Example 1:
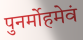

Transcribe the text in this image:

पुनर्मोहमेवं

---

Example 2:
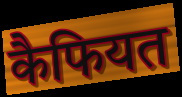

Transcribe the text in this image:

कैफियत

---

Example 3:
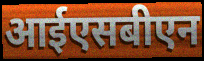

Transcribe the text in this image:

आईएसबीएन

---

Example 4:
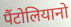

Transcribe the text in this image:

पैंटोलियानो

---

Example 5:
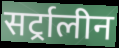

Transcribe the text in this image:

सर्ट्रालीन